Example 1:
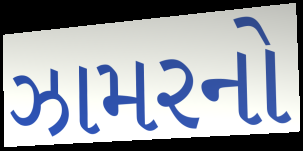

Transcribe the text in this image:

ઝામરનો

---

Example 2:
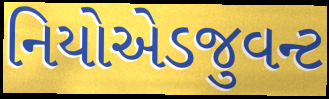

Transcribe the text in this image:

નિયોએડજુવન્ટ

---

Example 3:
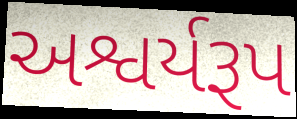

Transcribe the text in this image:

અશ્વર્યરૂપ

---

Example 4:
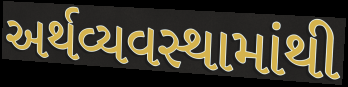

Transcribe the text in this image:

અર્થવ્યવસ્થામાંથી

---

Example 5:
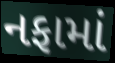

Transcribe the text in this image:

નફામાં